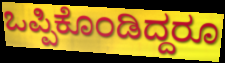
ಒಪ್ಪಿಕೊಂಡಿದ್ದರೂ